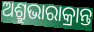
ଅଶ୍ରୁଭାରାକ୍ରାନ୍ତ